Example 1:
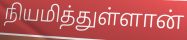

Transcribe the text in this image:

நியமித்துள்ளான்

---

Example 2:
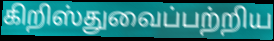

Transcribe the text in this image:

கிறிஸ்துவைப்பற்றிய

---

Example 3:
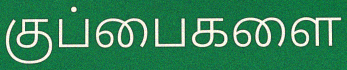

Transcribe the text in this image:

குப்பைகளை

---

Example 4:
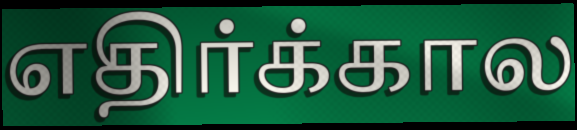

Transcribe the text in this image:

எதிர்க்கால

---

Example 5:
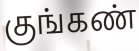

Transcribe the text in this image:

குங்கண்